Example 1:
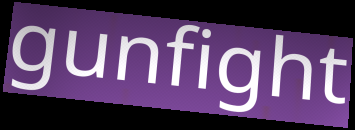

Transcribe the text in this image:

gunfight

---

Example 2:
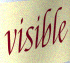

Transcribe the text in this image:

visible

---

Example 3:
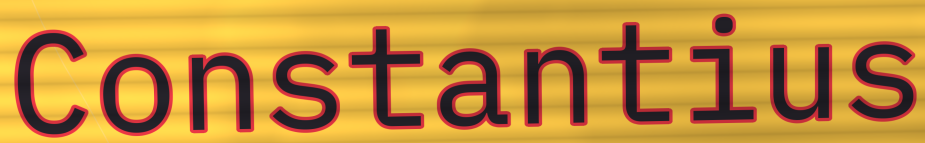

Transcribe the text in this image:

Constantius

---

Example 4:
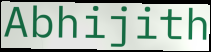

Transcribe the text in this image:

Abhijith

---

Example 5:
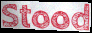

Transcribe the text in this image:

Stood